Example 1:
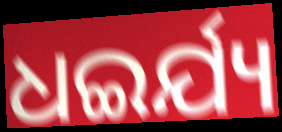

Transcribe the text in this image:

ଧଇର୍ଯ୍ୟ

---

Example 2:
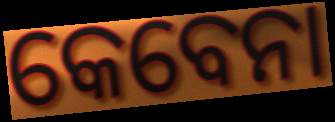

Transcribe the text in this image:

କେବେନା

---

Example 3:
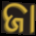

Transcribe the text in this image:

ଜା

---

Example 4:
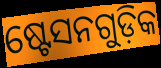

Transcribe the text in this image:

ଷ୍ଟେସନଗୁଡ଼ିକ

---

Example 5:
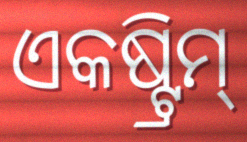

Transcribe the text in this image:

ଏକଷ୍ଟ୍ରିମ୍